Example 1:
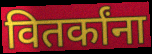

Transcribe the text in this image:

वितर्कांना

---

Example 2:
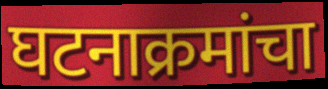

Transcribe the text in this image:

घटनाक्रमांचा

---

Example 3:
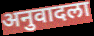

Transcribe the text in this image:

अनुवादला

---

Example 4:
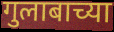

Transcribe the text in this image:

गुलाबाच्या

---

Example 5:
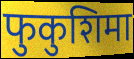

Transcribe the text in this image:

फुकुशिमा